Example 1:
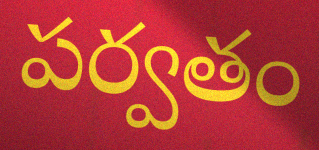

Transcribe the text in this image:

పర్వతం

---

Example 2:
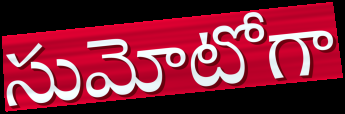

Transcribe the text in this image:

సుమోటోగా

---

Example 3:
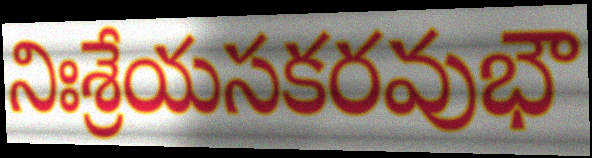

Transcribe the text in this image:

నిఃశ్రేయసకరవుభౌ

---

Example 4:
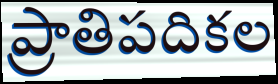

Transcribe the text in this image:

ప్రాతిపదికల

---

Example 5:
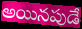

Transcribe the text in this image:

అయినపుడే